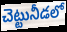
చెట్టునీడలో